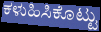
ಕಳುಹಿಸಿಕೊಟ್ಟು